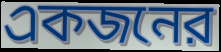
একজনের